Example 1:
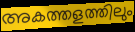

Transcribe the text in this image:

അകത്തളത്തിലും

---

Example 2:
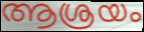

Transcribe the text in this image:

ആശ്രയം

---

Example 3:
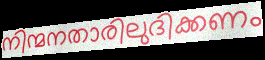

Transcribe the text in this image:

നിന്മനതാരിലുദിക്കണം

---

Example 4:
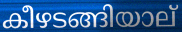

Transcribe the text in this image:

കീഴടങ്ങിയാല്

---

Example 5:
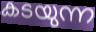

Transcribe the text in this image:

കടയുന്ന